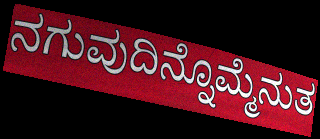
ನಗುವುದಿನ್ನೊಮ್ಮೆನುತ